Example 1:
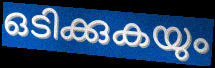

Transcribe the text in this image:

ഒടിക്കുകയും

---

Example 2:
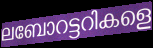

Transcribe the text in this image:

ലബോറട്ടറികളെ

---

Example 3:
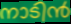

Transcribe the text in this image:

നാടിൻ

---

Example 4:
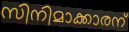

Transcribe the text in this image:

സിനിമാക്കാരന്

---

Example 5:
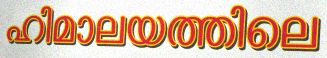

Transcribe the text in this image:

ഹിമാലയത്തിലെ